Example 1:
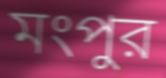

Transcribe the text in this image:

মংপুর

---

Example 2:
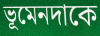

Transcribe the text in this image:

ভূমেনদাকে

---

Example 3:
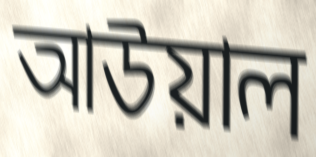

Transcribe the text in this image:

আউয়াল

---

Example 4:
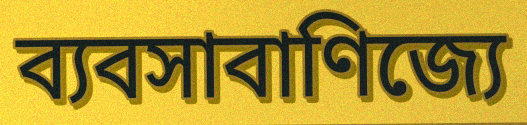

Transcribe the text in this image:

ব্যবসাবাণিজ্যে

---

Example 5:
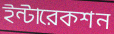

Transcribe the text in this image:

ইন্টারেকশন